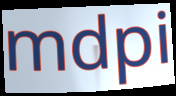
mdpi